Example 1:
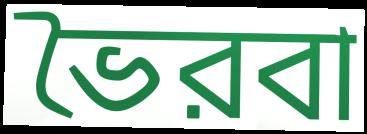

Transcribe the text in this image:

ভৈরবা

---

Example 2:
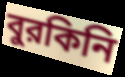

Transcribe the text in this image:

বুরকিনি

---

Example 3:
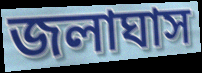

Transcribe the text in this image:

জলাঘাস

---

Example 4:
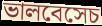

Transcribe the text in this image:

ভালবেসেচ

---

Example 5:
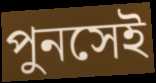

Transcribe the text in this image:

পুনসেই